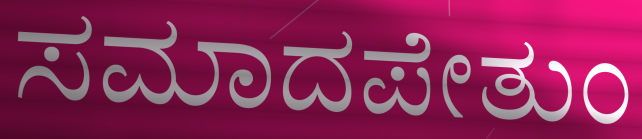
ಸಮಾದಪೇತುಂ